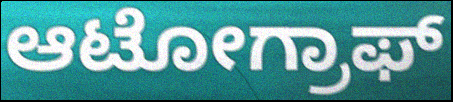
ಆಟೋಗ್ರಾಫ್